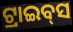
ଟ୍ରାଇବ୍‌ସ